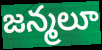
జన్మలూ